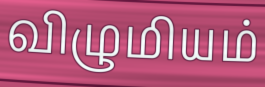
விழுமியம்